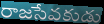
రాజసేవకుడు